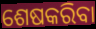
ଶେଷକରିବା